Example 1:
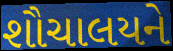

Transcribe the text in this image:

શૌચાલયને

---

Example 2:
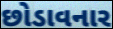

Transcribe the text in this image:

છોડાવનાર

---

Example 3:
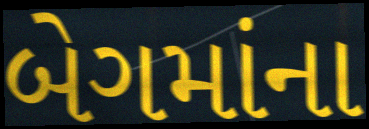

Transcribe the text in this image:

બેગમાંના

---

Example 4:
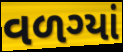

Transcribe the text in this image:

વળગ્યાં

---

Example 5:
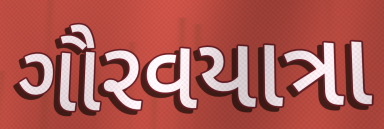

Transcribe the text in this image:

ગૌરવયાત્રા